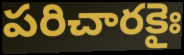
పరిచారకైః